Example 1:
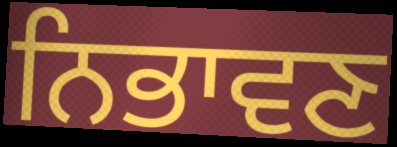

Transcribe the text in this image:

ਨਿਭਾਵਣ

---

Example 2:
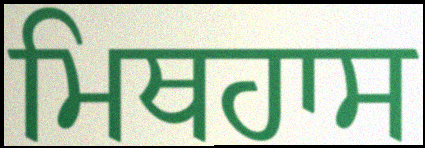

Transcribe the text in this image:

ਮਿਥਹਾਸ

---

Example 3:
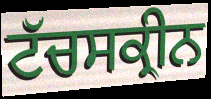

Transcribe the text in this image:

ਟੱਚਸਕ੍ਰੀਨ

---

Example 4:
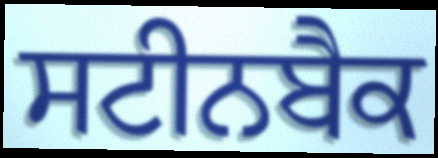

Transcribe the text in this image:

ਸਟੀਨਬੈਕ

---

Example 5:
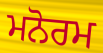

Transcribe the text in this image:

ਮਨੋਰਮ